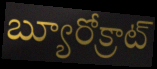
బ్యూరోక్రాట్